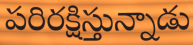
పరిరక్షిస్తున్నాడు